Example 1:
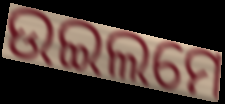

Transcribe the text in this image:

ଉଇଲମେ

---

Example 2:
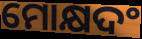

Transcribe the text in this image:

ମୋକ୍ଷଦଂ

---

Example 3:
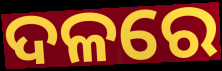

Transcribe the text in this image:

ଦଳରେ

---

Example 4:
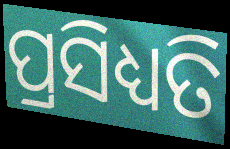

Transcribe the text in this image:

ପ୍ରସିଧ୍ୟତି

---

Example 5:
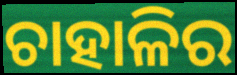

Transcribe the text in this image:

ଚାହାଳିର